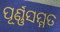
ପୂର୍ଣ୍ଣସମ୍ମତ